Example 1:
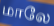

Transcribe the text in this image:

மாலே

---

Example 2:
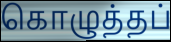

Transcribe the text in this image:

கொழுத்தப்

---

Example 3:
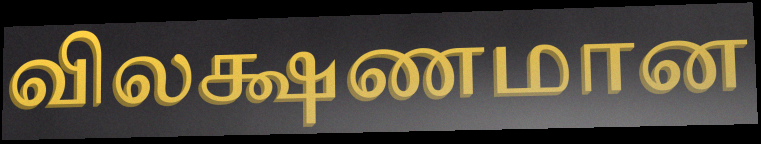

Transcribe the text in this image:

விலக்ஷணமான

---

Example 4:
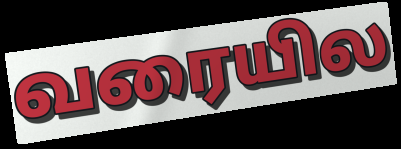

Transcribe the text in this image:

வரையில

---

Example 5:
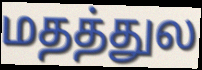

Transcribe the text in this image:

மதத்துல